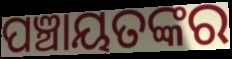
ପଞ୍ଚାୟତଙ୍କର